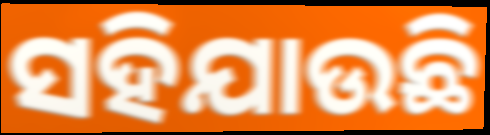
ସହିଯାଉଛି